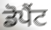
ਡੋਪੈਂਟ